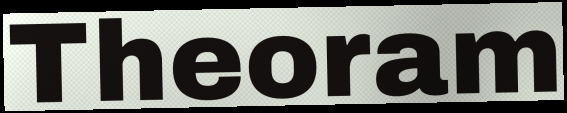
Theoram